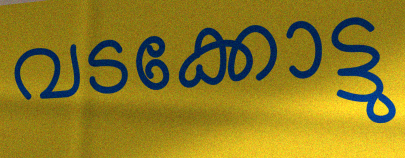
വടക്കോട്ടു